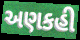
અણકહી